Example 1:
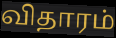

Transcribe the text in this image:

விதாரம்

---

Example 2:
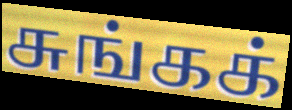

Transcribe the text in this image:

சுங்கக்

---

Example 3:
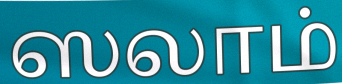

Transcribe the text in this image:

ஸலாம்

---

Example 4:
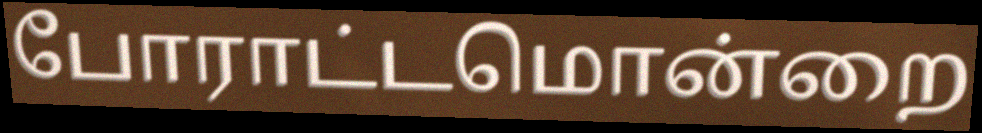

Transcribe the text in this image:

போராட்டமொன்றை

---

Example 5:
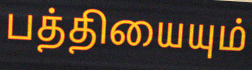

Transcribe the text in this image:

பத்தியையும்